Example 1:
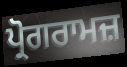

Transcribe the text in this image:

ਪ੍ਰੋਗਰਾਮਜ਼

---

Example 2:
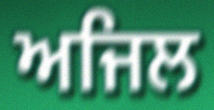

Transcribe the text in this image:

ਅਜਿਲ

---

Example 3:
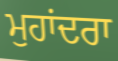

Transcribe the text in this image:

ਮੁਹਾਂਦਰਾ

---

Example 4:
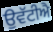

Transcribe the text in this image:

ਉਵੱਟੀਐ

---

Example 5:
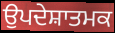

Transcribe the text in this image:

ਉਪਦੇਸ਼ਾਤਮਕ